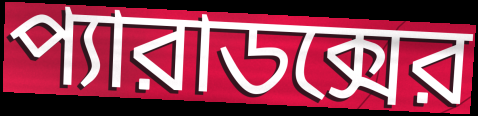
প্যারাডক্সের